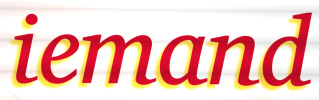
iemand